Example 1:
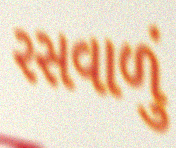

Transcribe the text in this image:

રસવાળું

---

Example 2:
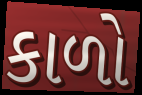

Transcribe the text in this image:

કાળો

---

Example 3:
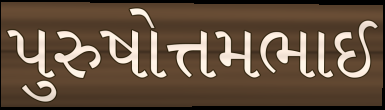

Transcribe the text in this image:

પુરુષોત્તમભાઈ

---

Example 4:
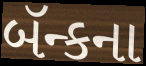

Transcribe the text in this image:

બૅન્કના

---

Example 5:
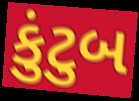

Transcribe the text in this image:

કુંટુબ